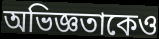
অভিজ্ঞতাকেও